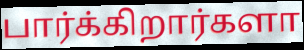
பார்க்கிறார்களா